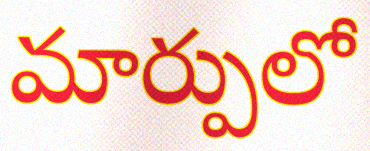
మార్పులో